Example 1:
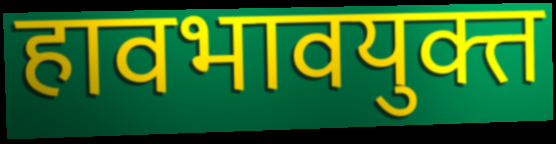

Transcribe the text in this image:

हावभावयुक्त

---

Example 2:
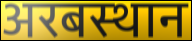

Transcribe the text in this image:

अरबस्थान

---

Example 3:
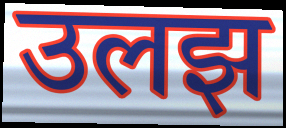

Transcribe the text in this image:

उलझ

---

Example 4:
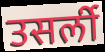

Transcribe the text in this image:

उसर्ली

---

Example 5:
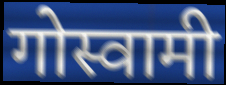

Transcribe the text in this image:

गोस्वामी